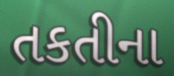
તકતીના